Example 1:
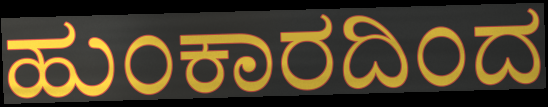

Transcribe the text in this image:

ಹುಂಕಾರದಿಂದ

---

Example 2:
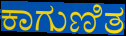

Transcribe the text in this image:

ಕಾಗುಣಿತ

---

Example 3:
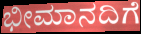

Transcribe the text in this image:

ಭೀಮಾನದಿಗೆ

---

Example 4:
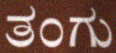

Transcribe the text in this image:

ತಂಗು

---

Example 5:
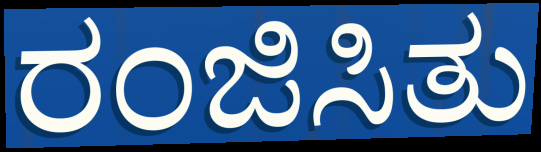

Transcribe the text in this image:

ರಂಜಿಸಿತು